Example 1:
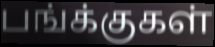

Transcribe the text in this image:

பங்க்குகள்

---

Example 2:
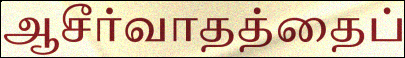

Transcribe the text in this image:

ஆசீர்வாதத்தைப்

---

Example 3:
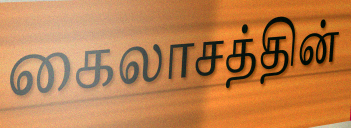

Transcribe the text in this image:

கைலாசத்தின்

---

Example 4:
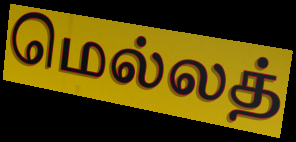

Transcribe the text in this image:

மெல்லத்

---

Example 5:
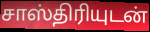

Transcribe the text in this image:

சாஸ்திரியுடன்